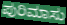
ಪುರಿಮಾಸು